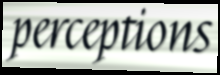
perceptions